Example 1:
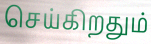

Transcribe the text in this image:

செய்கிறதும்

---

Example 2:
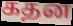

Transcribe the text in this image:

கதன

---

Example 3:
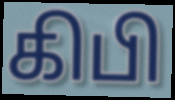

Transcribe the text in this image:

கிபி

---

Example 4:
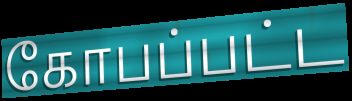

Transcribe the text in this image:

கோபப்பட்ட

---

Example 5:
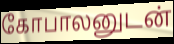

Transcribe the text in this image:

கோபாலனுடன்